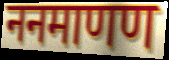
ननमाणण